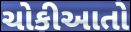
ચોકીઆતો